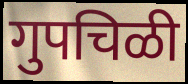
गुपचिळी